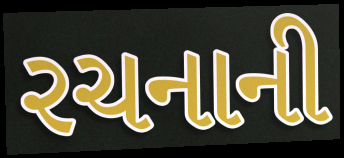
રચનાની